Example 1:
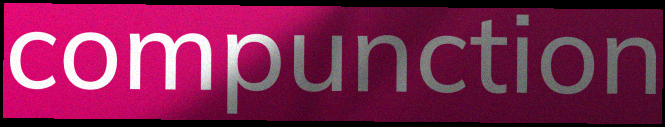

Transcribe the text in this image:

compunction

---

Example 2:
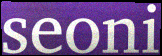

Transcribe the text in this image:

seoni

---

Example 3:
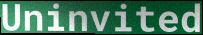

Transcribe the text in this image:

Uninvited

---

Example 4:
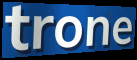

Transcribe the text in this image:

trone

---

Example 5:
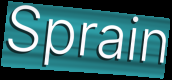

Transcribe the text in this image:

Sprain